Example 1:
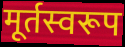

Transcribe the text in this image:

मूर्तस्वरूप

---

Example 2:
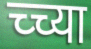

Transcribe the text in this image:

च्च्या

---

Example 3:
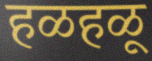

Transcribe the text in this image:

हळहळू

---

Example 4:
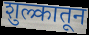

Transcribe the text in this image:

शुल्कातून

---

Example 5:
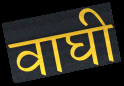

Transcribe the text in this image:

वाघी